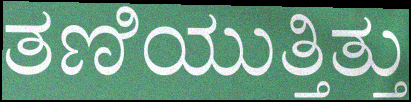
ತಣಿಯುತ್ತಿತ್ತು